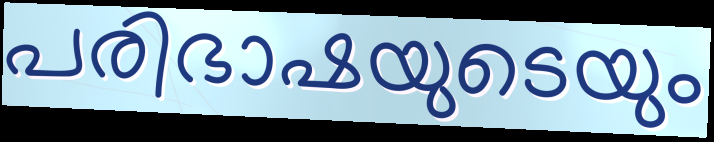
പരിഭാഷയുടെയും